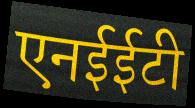
एनईईटी